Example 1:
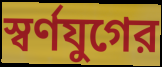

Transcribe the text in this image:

স্বর্ণযুগের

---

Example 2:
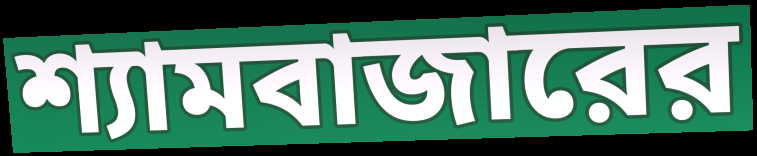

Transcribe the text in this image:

শ্যামবাজারের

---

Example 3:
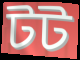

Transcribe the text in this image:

টট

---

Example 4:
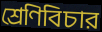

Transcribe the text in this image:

শ্রেণিবিচার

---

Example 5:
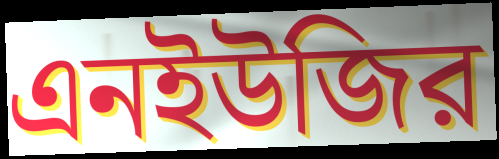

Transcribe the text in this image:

এনইউজির